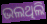
ଭଲଥିଲି